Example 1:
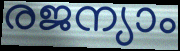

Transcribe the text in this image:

രജന്യാം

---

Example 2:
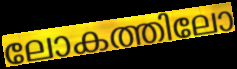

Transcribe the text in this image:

ലോകത്തിലോ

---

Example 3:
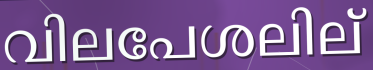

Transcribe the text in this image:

വിലപേശലില്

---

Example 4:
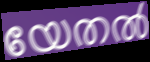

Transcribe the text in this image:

യേതൽ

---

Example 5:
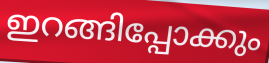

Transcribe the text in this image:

ഇറങ്ങിപ്പോക്കും